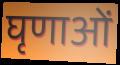
घृणाओं